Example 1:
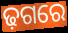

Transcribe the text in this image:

ଢ଼ଗରେ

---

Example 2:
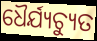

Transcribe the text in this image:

ଧୈର୍ଯ୍ୟଚ୍ୟୁତ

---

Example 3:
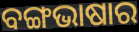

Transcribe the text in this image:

ବଙ୍ଗଭାଷାର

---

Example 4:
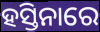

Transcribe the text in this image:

ହସ୍ତିନାରେ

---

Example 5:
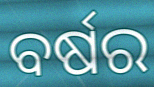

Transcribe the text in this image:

ବର୍ଷର